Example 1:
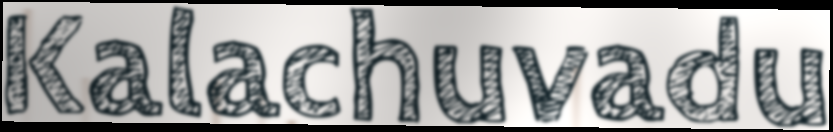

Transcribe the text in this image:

Kalachuvadu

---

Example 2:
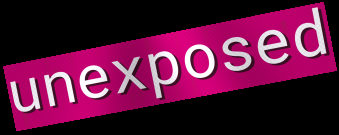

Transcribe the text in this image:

unexposed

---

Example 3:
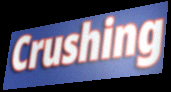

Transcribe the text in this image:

Crushing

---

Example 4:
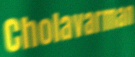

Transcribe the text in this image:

Cholavarman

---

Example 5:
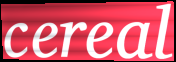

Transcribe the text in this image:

cereal